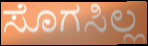
ಸೊಗಸಿಲ್ಲ